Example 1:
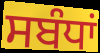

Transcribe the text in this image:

ਸਬੰਧਾਂ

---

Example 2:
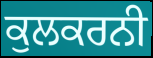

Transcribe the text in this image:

ਕੁਲਕਰਨੀ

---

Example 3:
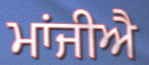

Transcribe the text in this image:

ਮਾਂਜੀਐ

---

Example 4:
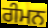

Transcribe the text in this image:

ਰੀਮਨ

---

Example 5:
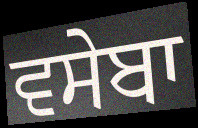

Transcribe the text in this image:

ਵਸੇਬਾ